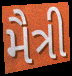
મૈત્રી